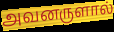
அவனருளால்